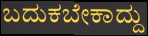
ಬದುಕಬೇಕಾದ್ದು